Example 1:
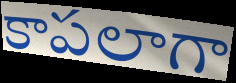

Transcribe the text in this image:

కాపలాగా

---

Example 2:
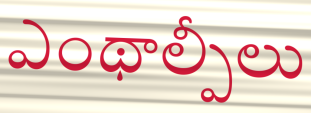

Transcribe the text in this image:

ఎంథాల్పీలు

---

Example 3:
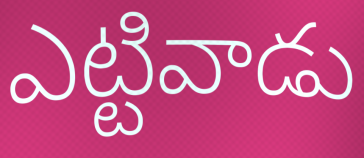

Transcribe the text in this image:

ఎట్టివాడు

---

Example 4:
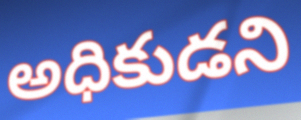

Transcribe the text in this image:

అధికుడని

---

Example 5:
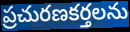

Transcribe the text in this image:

ప్రచురణకర్తలను